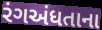
રંગઅંધતાના